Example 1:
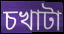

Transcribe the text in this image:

চখাটা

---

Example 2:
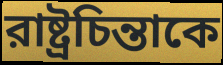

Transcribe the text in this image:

রাষ্ট্রচিন্তাকে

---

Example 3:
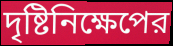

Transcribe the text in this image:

দৃষ্টিনিক্ষেপের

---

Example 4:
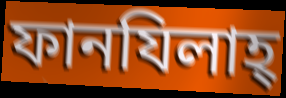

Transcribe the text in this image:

ফানযিলাহ্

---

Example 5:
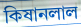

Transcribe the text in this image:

কিষানলাল